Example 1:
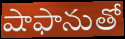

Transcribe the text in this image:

షాఫానుతో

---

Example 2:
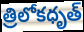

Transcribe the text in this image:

త్రిలోకధృత్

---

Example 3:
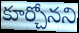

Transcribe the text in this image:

కూర్చోనని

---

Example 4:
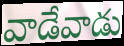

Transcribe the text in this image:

వాడేవాడు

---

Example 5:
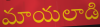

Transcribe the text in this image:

మాయలాడి